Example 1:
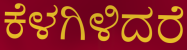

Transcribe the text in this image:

ಕೆಳಗಿಳಿದರೆ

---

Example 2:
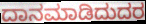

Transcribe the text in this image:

ದಾನಮಾಡಿದುದರ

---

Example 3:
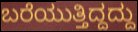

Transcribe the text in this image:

ಬರೆಯುತ್ತಿದ್ದದ್ದು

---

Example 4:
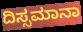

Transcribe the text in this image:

ದಿಸ್ಸಮಾನಾ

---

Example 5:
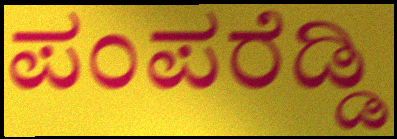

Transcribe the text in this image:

ಪಂಪರೆಡ್ಡಿ